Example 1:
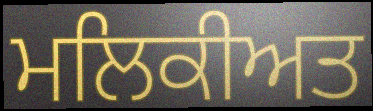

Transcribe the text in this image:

ਮਲਿਕੀਅਤ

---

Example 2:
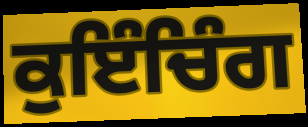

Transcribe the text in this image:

ਕੁਇੰਚਿੰਗ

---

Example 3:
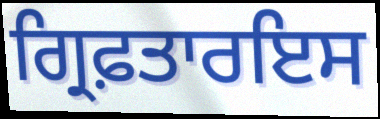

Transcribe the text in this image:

ਗ੍ਰਿਫ਼ਤਾਰਇਸ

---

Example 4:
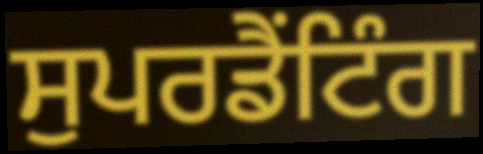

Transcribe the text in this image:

ਸੁਪਰਡੈਂਟਿੰਗ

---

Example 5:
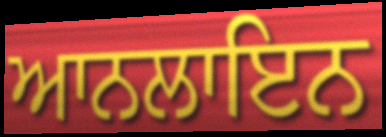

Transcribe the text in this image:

ਆਨਲਾਇਨ